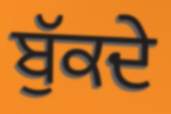
ਬੁੱਕਦੇ